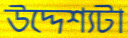
উদ্দেশ্যটা